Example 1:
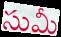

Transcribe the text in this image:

సుమీ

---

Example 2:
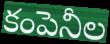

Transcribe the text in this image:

కంపెనీల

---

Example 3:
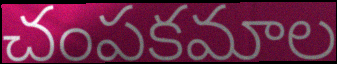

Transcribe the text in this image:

చంపకమాల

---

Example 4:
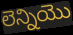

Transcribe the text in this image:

లెన్నియొ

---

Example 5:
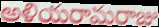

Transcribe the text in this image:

అళియరామరాజు